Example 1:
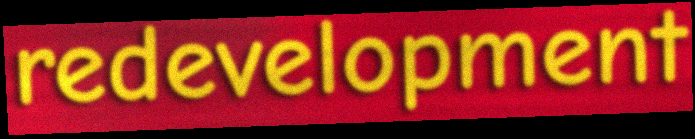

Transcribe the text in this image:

redevelopment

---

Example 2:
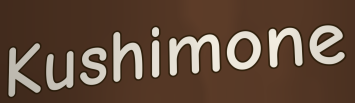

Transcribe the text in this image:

Kushimone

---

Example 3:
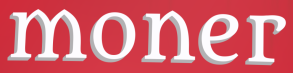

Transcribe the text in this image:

moner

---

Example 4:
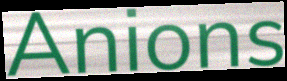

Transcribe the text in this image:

Anions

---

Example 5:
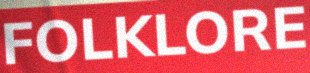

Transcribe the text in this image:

FOLKLORE